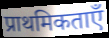
प्राथमिकताएँ